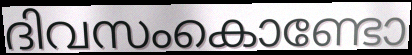
ദിവസംകൊണ്ടോ